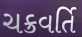
ચક્રવર્તિ